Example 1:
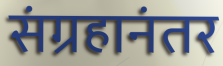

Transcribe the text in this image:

संग्रहानंतर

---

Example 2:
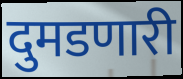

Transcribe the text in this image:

दुमडणारी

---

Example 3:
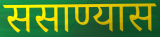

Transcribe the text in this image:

ससाण्यास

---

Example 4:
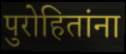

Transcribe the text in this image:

पुरोहितांना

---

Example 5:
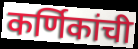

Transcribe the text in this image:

कर्णिकांची